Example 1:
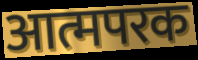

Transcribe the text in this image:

आत्मपरक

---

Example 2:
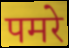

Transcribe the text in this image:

पमरे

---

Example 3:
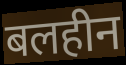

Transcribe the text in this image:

बलहीन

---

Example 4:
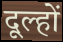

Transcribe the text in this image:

दूल्‍हों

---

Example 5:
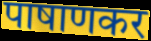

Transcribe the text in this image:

पाषाणकर